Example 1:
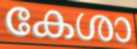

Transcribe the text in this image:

കേശാ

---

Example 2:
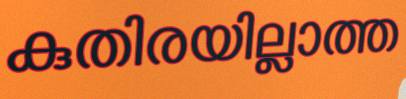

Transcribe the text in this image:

കുതിരയില്ലാത്ത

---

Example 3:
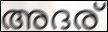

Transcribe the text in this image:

അദര്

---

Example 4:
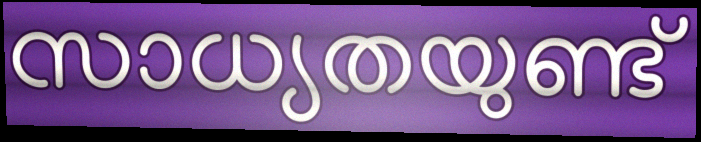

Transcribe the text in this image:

സാധ്യതയുണ്ട്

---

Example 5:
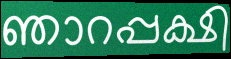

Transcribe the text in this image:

ഞാറപ്പക്ഷി